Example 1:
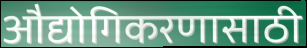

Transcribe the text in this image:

औद्योगिकरणासाठी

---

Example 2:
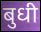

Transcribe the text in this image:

बुधी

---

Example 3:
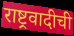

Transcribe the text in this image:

राष्ट्रवादीची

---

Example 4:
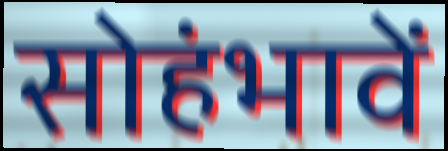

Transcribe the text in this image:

सोहंभावें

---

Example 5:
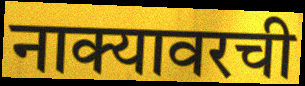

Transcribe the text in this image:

नाक्यावरची